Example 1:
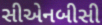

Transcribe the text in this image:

સીએનબીસી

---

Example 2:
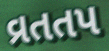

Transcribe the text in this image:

વ્રતતપ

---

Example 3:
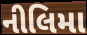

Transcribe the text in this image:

નીલિમા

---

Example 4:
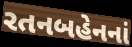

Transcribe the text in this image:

રતનબહેનનાં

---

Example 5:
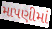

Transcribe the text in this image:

માપણીમાં